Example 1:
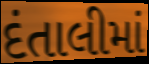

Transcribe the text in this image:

દંતાલીમાં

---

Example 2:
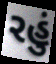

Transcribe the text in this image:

રહું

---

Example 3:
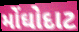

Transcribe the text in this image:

મોંઘોદાટ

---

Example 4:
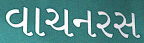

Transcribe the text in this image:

વાચનરસ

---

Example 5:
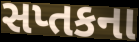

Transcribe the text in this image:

સપ્તકના